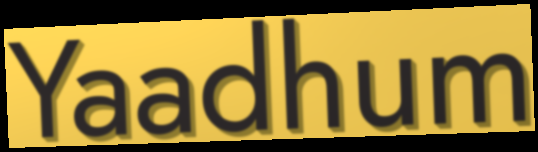
Yaadhum